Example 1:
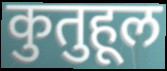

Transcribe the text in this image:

कुतुहूल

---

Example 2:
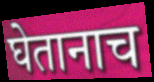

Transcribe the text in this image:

घेतानाच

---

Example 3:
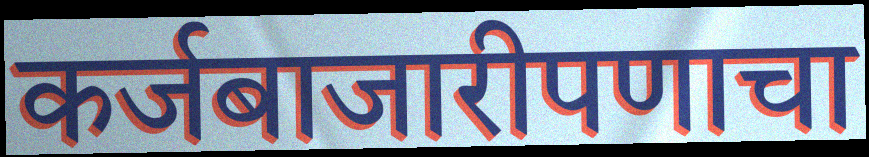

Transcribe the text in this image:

कर्जबाजारीपणाचा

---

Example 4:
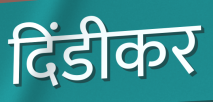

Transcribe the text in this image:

दिंडीकर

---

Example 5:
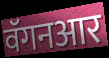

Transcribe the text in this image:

वॅगनआर